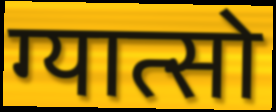
ग्यात्सो